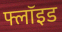
फ्लॉइड